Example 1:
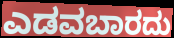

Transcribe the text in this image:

ಎಡವಬಾರದು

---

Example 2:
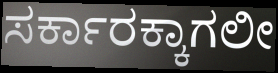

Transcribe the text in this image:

ಸರ್ಕಾರಕ್ಕಾಗಲೀ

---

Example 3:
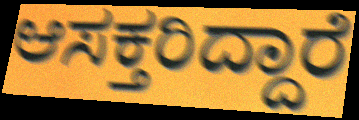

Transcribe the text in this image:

ಆಸಕ್ತರಿದ್ದಾರೆ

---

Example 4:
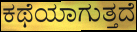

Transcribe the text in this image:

ಕಥೆಯಾಗುತ್ತದೆ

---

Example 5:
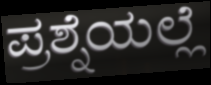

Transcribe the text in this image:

ಪ್ರಶ್ನೆಯಲ್ಲೆ